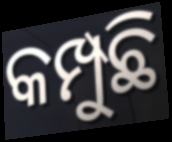
କମ୍ପୁଛି